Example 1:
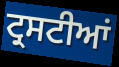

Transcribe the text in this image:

ਟ੍ਰਸਟੀਆਂ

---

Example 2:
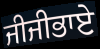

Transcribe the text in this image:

ਜੀਜੀਭਾਏ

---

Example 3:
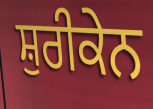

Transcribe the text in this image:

ਸ਼ੁਰੀਕੇਨ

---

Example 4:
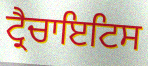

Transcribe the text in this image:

ਟ੍ਰੈਚਾਇਟਿਸ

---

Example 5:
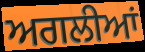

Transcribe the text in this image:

ਅਗਲੀਆਂ